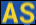
AS